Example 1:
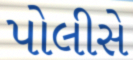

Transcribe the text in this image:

પોલીસે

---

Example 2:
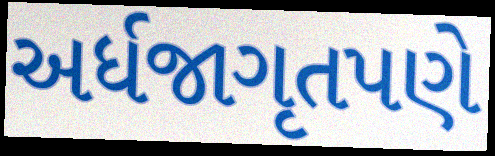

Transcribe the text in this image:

અર્ધજાગૃતપણે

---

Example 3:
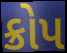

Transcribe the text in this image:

ક્રોપ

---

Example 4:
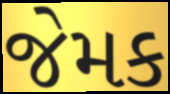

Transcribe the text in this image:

જેમક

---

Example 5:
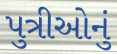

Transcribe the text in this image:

પુત્રીઓનું